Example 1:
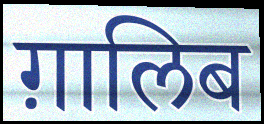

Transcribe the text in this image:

ग़ालिब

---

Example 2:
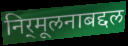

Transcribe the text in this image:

निर्मूलनाबद्दल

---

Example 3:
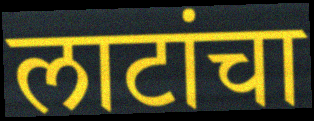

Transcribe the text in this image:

लाटांचा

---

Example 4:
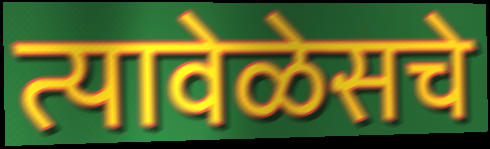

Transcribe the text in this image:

त्यावेळेसचे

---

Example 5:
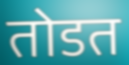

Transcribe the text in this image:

तोडत